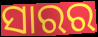
ସାରର